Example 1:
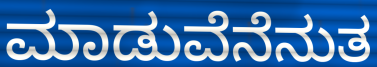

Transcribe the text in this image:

ಮಾಡುವೆನೆನುತ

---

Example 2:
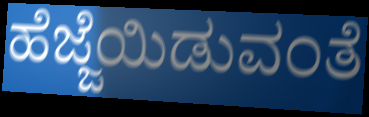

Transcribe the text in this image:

ಹೆಜ್ಜೆಯಿಡುವಂತೆ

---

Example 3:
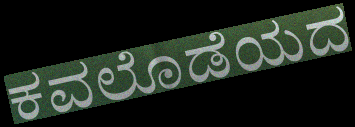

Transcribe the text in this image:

ಕವಲೊಡೆಯದ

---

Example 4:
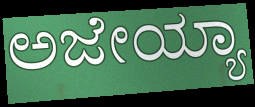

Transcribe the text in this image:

ಅಜೇಯ್ಯಾ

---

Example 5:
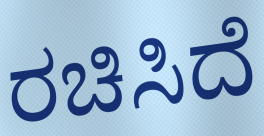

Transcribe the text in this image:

ರಚಿಸಿದೆ